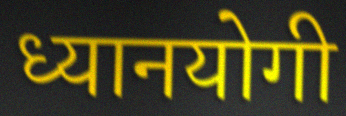
ध्यानयोगी